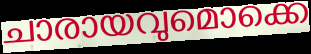
ചാരായവുമൊക്കെ